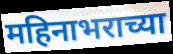
महिनाभराच्या